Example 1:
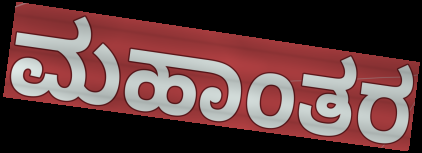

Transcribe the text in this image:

ಮಹಾಂತರ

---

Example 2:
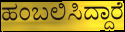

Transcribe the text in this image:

ಹಂಬಲಿಸಿದ್ದಾರೆ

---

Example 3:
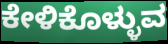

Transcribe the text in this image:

ಕೇಳಿಕೊಳ್ಳುವ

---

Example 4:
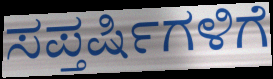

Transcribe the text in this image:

ಸಪ್ತರ್ಷಿಗಳಿಗೆ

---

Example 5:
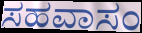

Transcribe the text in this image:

ಸಹವಾಸಂ